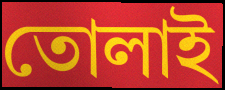
তোলাই